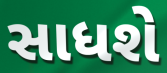
સાધશે